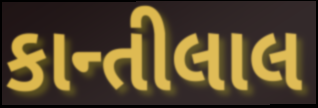
કાન્તીલાલ